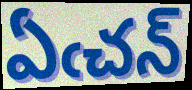
ఏఁచన్